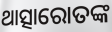
ଥାତ୍ସାରୋତଙ୍କ